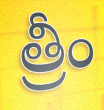
త్రీం